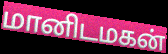
மானிடமகன்